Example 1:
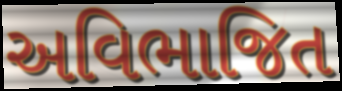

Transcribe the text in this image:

અવિભાજિત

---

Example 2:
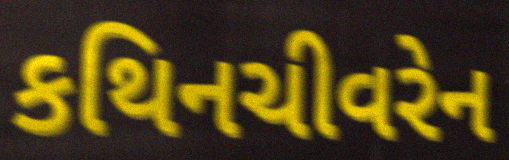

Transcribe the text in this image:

કથિનચીવરેન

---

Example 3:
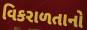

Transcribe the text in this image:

વિકરાળતાનો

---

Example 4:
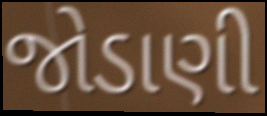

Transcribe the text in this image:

જોડાણી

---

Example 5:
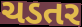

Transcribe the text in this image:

ચડતર